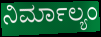
ನಿರ್ಮಾಲ್ಯಂ